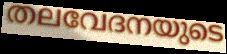
തലവേദനയുടെ